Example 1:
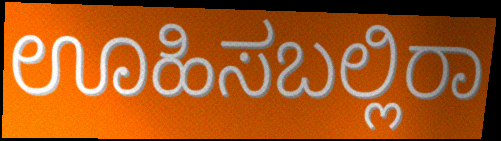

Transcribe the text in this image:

ಊಹಿಸಬಲ್ಲಿರಾ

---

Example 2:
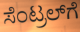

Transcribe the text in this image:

ಸೆಂಟ್ರಲ್‌ಗೆ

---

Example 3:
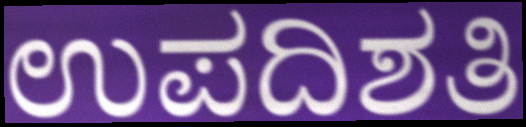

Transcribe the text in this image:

ಉಪದಿಶತಿ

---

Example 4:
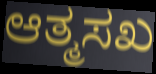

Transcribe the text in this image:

ಆತ್ಮಸಖ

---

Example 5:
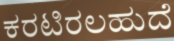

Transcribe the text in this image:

ಕರಟಿರಲಹುದೆ